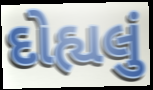
દોહ્યલું